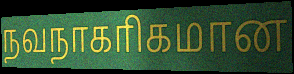
நவநாகரிகமான